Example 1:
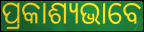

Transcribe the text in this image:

ପ୍ରକାଶ୍ୟଭାବେ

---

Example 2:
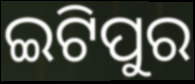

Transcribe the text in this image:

ଇଟିପୁର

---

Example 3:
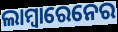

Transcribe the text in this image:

ଲାମ୍ବାରେନେର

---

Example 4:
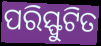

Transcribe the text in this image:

ପରିସ୍ଫୁଟିତ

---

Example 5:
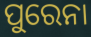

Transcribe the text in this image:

ପୁରେନା